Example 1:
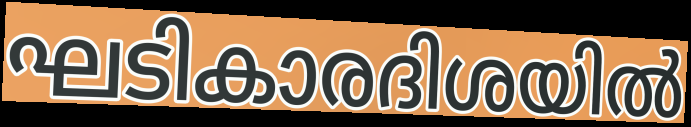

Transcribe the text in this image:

ഘടികാരദിശയിൽ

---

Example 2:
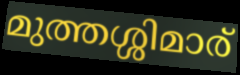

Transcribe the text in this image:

മുത്തശ്ശിമാര്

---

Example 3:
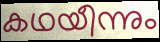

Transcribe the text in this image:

കഥയീന്നും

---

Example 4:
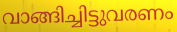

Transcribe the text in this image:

വാങ്ങിച്ചിട്ടുവരണം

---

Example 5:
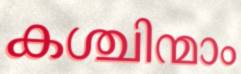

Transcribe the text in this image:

കശ്ചിന്മാം